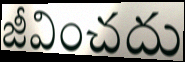
జీవించదు